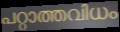
പറ്റാത്തവിധം